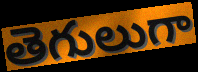
తెగులుగా